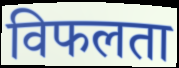
विफलता